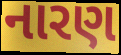
નારણ